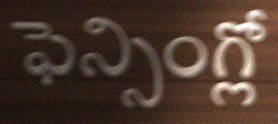
ఫెన్సింగ్లో